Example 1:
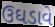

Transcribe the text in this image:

ઉઘડાવે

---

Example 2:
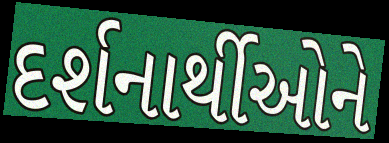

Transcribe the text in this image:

દર્શનાર્થીઓને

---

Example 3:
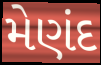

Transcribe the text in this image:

મેણંદ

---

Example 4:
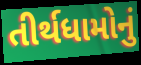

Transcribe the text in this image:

તીર્થધામોનું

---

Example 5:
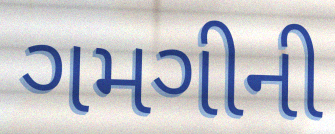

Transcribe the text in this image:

ગમગીની